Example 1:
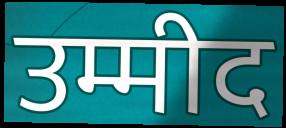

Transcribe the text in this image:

उम्मीद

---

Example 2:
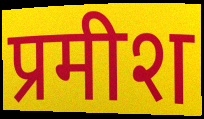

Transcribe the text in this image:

प्रमीश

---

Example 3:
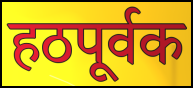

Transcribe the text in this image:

हठपूर्वक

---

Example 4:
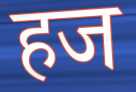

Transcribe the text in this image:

हज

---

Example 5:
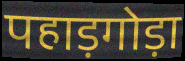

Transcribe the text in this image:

पहाड़गोड़ा